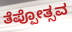
ತೆಪ್ಪೋತ್ಸವ